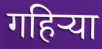
गहिर्‍या